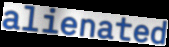
alienated